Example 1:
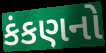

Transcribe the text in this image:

કંકણનો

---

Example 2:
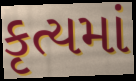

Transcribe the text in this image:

કૃત્યમાં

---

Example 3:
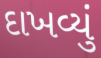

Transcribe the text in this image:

દાખવ્યું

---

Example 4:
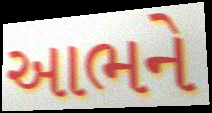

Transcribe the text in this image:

આભને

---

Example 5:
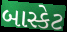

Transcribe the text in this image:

બાસ્કેટ